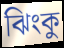
ঝিংকু